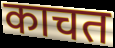
काचत